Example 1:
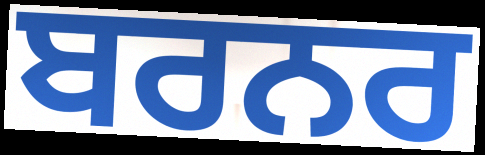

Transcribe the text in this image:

ਬਰਨਰ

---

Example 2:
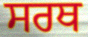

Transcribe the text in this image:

ਸਰਥ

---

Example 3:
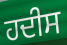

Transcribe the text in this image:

ਹਦੀਸ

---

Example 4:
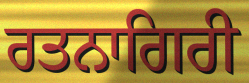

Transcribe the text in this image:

ਰਤਨਾਗਿਰੀ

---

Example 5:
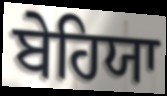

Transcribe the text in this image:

ਬੇਹਿਯਾ